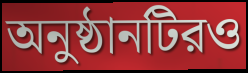
অনুষ্ঠানটিরও